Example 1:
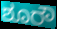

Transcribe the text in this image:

ಶೂರೌ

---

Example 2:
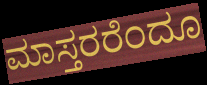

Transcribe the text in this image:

ಮಾಸ್ತರರೆಂದೂ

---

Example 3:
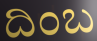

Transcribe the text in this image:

ದಿಂಬ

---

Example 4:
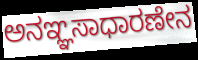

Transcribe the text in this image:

ಅನಞ್ಞಸಾಧಾರಣೇನ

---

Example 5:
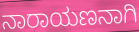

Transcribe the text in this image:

ನಾರಾಯಣನಾಗಿ